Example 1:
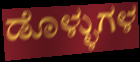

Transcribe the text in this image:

ಡೊಳ್ಳುಗಳ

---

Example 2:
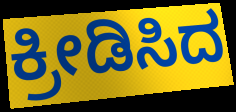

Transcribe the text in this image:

ಕ್ರೀಡಿಸಿದ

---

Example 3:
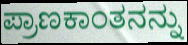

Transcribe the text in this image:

ಪ್ರಾಣಕಾಂತನನ್ನು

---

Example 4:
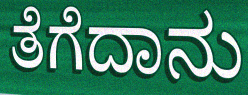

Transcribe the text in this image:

ತೆಗೆದಾನು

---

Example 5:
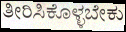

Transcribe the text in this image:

ತೀರಿಸಿಕೊಳ್ಳಬೇಕು